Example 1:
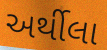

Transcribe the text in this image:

અર્થીલા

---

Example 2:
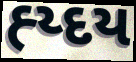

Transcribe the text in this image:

હ્ય્દય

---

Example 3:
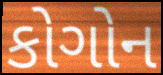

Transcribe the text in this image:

કોગોન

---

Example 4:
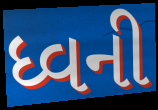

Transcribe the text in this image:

ધ્વની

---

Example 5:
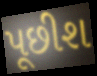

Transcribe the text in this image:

પૂછીશ